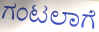
ಗಂಟಲಾಗೆ